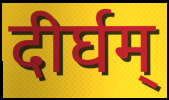
दीर्घम्